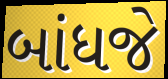
બાંધજે